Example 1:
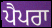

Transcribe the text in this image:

ਪੈਪਰਾ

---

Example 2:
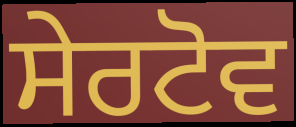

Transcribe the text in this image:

ਸੇਰਟੋਵ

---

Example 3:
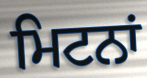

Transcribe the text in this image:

ਮਿਟਨਾਂ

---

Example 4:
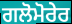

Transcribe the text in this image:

ਗਲੋਮੋਰੇਰ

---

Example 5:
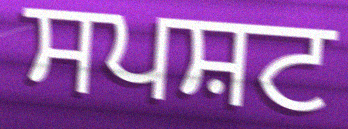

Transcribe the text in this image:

ਸਪਸ਼ਟ